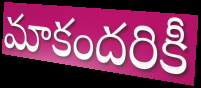
మాకందరికీ